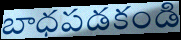
బాధపడకండి